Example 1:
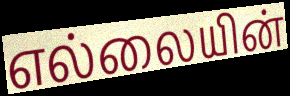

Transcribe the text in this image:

எல்லையின்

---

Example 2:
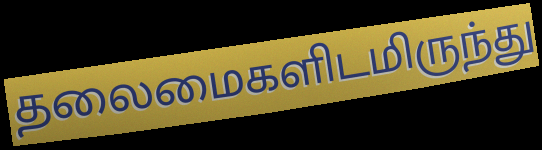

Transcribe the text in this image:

தலைமைகளிடமிருந்து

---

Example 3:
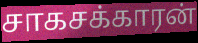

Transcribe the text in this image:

சாகசக்காரன்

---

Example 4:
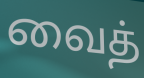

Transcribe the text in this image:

வைத்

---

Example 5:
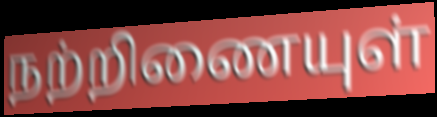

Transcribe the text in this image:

நற்றிணையுள்